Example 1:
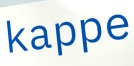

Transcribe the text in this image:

kappe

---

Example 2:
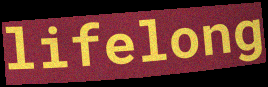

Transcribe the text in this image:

lifelong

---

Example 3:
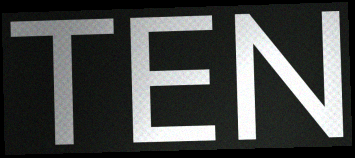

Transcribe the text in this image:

TEN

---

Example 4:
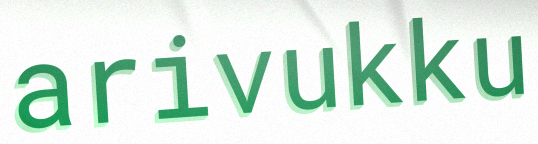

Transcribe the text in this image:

arivukku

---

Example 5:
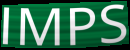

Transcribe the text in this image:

IMPS